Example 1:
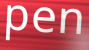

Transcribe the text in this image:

pen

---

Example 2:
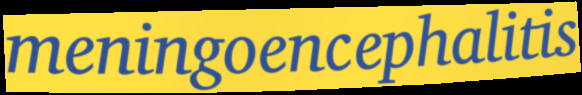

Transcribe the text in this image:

meningoencephalitis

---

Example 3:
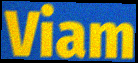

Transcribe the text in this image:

Viam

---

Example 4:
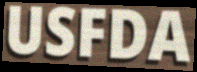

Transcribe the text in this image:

USFDA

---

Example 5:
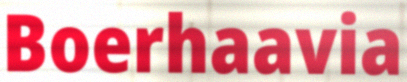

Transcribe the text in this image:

Boerhaavia